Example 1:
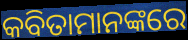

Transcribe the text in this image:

କବିତାମାନଙ୍କରେ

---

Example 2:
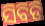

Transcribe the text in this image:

ସିବିଡି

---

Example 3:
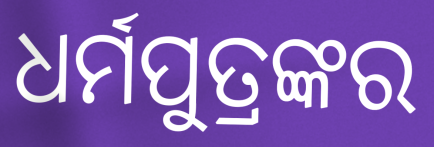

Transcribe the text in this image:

ଧର୍ମପୁତ୍ରଙ୍କର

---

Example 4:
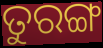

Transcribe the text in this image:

ତୁରଙ୍ଗ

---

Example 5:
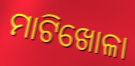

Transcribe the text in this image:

ମାଟିଖୋଳା